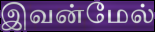
இவன்மேல்